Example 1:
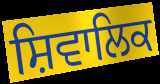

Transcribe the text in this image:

ਸ਼ਿਵਾਲਿਕ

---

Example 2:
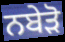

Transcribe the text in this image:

ਨਬੇੜੋ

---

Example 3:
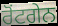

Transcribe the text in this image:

ਰੋਂਟਗੇਨ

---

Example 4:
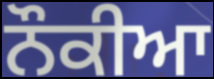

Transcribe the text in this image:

ਨੌਕੀਆ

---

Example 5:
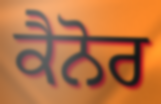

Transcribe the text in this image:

ਕੈਨੋਰ